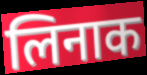
लिनाक